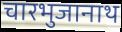
चारभुजानाथ